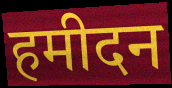
हमीदन